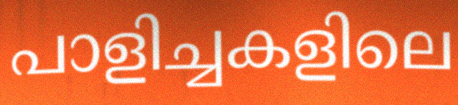
പാളിച്ചകളിലെ